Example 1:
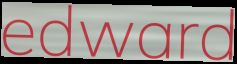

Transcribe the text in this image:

edward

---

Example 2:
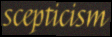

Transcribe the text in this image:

scepticism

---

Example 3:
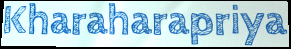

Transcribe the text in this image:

Kharaharapriya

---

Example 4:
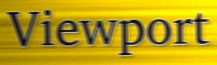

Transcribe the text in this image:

Viewport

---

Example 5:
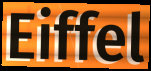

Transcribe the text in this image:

Eiffel